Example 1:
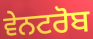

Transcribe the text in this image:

ਵੇਨਟਰੋਬ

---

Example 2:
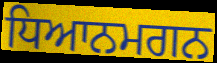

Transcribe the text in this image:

ਧਿਆਨਮਗਨ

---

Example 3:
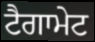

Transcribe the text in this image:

ਟੈਗਾਮੇਟ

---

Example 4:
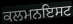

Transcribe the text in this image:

ਕਲਮਨਇਸਟ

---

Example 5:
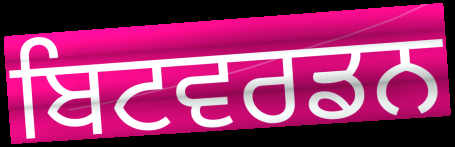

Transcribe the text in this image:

ਬਿਟਵਰਡਨ